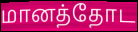
மானத்தோட